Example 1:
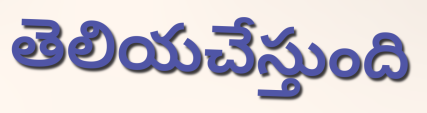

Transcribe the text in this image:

తెలియచేస్తుంది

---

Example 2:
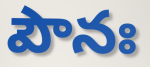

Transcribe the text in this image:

పౌనః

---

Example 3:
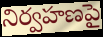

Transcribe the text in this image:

నిర్వహణపై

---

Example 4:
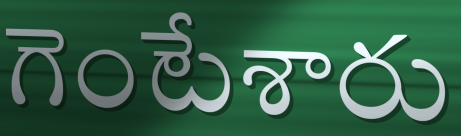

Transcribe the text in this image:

గెంటేశారు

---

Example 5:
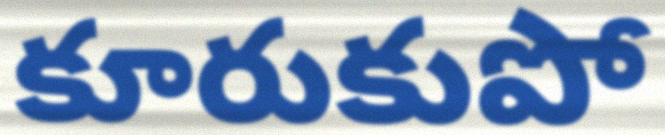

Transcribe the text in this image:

కూరుకుపో